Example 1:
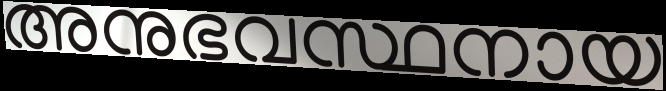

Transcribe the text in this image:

അനുഭവസ്ഥനായ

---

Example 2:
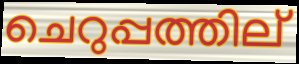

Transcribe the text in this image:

ചെറുപ്പത്തില്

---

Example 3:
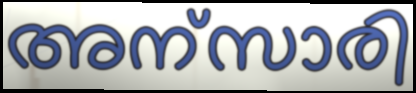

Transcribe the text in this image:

അന്സാരി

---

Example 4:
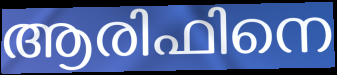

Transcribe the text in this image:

ആരിഫിനെ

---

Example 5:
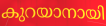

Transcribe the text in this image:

കുറയാനായി